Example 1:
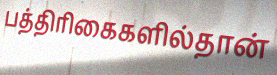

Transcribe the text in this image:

பத்திரிகைகளில்தான்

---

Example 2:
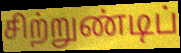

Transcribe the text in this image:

சிற்றுண்டிப்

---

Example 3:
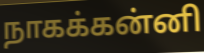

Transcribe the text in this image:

நாகக்கன்னி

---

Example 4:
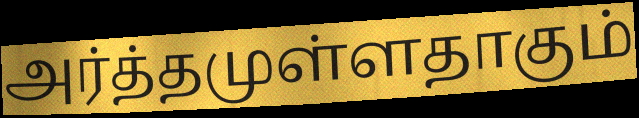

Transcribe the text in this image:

அர்த்தமுள்ளதாகும்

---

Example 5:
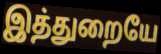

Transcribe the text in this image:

இத்துறையே